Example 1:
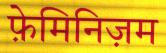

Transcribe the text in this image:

फ़ेमिनिज़म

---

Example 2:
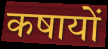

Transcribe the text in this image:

कषायों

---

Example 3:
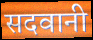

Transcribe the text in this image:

सदवानी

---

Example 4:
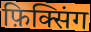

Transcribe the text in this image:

फ़िक्सिंग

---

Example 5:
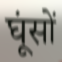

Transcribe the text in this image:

घूंसों